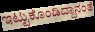
ಇಟ್ಟುಕೊಂಡಿದ್ದಾನಂತೆ